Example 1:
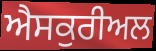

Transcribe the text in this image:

ਐਸਕੁਰੀਅਲ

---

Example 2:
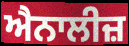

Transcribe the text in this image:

ਐਨਾਲੀਜ਼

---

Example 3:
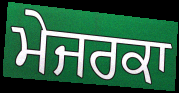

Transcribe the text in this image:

ਮੇਜਰਕਾ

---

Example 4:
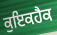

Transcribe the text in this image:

ਕੁਇਕਹੈਕ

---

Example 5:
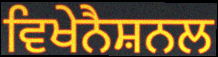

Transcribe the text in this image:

ਵਿਖੇਨੈਸ਼ਨਲ